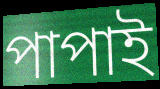
পাপাই